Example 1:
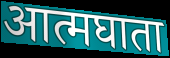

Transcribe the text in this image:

आत्मघाता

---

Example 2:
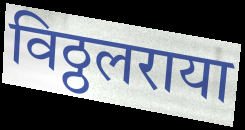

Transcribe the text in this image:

विठ्ठलराया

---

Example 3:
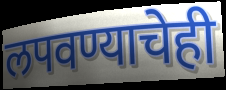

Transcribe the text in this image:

लपवण्याचेही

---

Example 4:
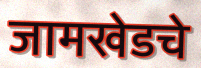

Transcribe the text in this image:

जामखेडचे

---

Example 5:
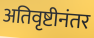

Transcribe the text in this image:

अतिवृष्टीनंतर